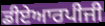
ਡੀਏਆਰਪੀਜੀ